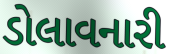
ડોલાવનારી